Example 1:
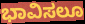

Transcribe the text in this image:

ಭಾವಿಸಲೂ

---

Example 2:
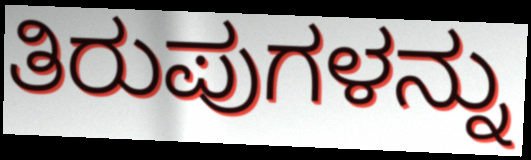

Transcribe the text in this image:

ತಿರುಪುಗಳನ್ನು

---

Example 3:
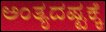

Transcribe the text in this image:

ಅಂತ್ಯದಷ್ಟಕ್ಕೆ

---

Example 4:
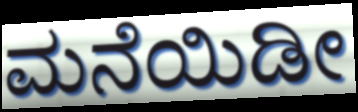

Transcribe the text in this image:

ಮನೆಯಿಡೀ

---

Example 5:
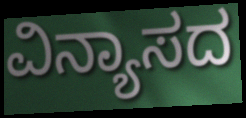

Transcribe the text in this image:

ವಿನ್ಯಾಸದ